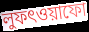
লুফৎওয়াফো